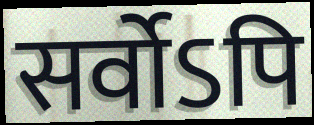
सर्वोऽपि